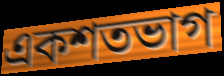
একশতভাগ